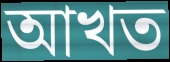
আখত